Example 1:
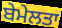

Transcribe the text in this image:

ਬੇਮੇਲਤਾ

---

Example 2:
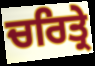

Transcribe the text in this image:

ਚਰਿਤ੍ਰੇ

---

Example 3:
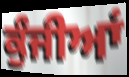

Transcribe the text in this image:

ਕੁੰਜੀਆਂ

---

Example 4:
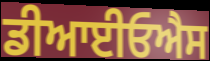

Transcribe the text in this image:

ਡੀਆਈਓਐਸ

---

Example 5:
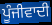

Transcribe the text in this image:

ਪੂੰਜੀਵਾਦੀ